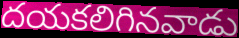
దయకలిగినవాడు